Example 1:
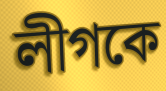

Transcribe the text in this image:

লীগকে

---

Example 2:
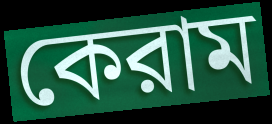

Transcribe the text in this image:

কেরাম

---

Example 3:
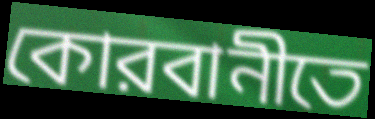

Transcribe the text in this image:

কোরবানীতে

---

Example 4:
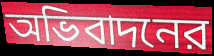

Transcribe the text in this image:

অভিবাদনের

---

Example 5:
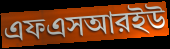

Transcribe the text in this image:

এফএসআরইউ